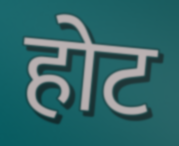
होट